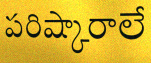
పరిష్కారాలే